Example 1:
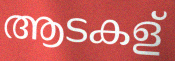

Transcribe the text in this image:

ആടകള്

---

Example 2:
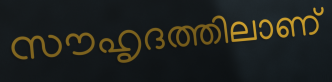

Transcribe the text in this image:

സൗഹൃദത്തിലാണ്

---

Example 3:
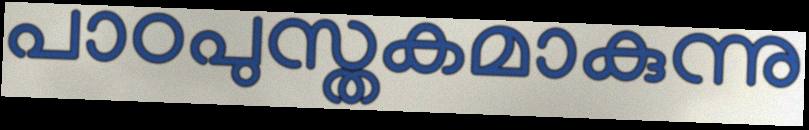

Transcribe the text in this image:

പാഠപുസ്തകമാകുന്നു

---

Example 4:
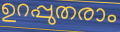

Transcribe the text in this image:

ഉറപ്പുതരാം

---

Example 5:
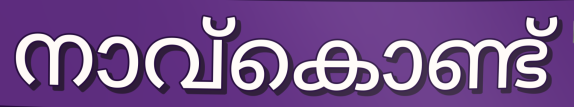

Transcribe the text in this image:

നാവ്കൊണ്ട്